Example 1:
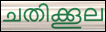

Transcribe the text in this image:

ചതിക്കൂല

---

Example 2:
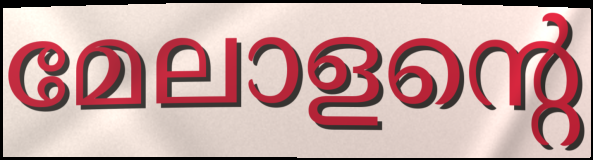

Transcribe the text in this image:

മേലാളന്റെ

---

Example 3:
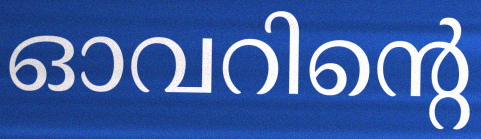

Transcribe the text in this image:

ഓവറിന്റെ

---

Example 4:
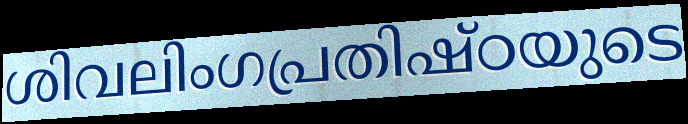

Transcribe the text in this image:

ശിവലിംഗപ്രതിഷ്ഠയുടെ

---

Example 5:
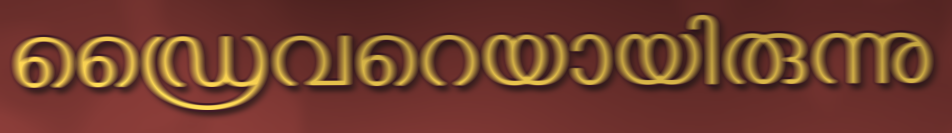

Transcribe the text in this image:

ഡ്രൈവറെയായിരുന്നു